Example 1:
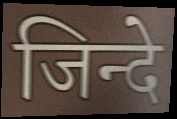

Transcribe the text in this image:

जिन्दे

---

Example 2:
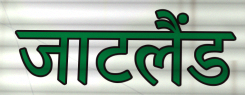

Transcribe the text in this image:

जाटलैंड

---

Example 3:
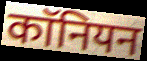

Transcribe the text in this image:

कॉनियन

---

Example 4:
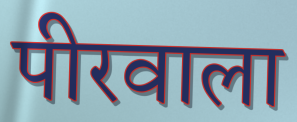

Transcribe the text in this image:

पीरवाला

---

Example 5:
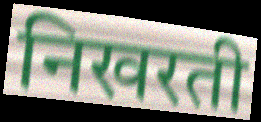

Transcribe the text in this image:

निखरती